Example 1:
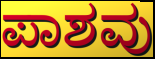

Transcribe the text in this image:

ಪಾಶವು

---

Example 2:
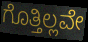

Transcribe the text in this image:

ಗೊತ್ತಿಲ್ಲವೇ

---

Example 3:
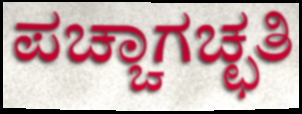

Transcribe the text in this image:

ಪಚ್ಚಾಗಚ್ಛತಿ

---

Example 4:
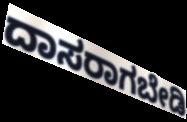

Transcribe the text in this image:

ದಾಸರಾಗಬೇಡಿ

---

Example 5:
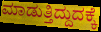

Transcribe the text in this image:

ಮಾಡುತ್ತಿದ್ದುದಕ್ಕೆ